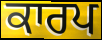
ਕਾਰਪ